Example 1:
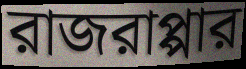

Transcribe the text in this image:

রাজরাপ্পার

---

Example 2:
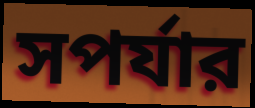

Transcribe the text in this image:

সপর্যার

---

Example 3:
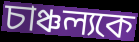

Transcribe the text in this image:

চাঞ্চল্যকে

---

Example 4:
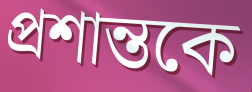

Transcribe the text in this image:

প্রশান্তকে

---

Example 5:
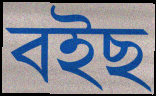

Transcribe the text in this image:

বইছ